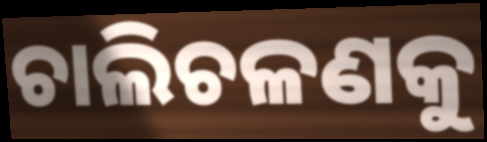
ଚାଲିଚଳଣକୁ